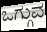
ಒಗ್ಗುವ